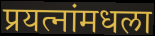
प्रयत्नांमधला